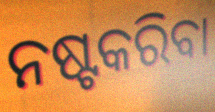
ନଷ୍ଟକରିବା